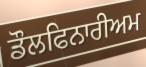
ਡੌਲਫਿਨਾਰੀਅਮ